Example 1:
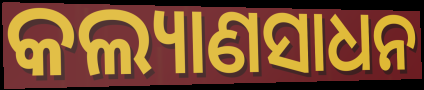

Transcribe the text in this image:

କଲ୍ୟାଣସାଧନ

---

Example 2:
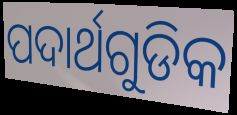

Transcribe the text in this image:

ପଦାର୍ଥଗୁଡିକ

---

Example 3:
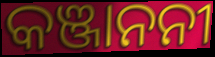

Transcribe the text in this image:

କଞ୍ଜାନନୀ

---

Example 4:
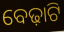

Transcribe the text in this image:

ବେଢ଼ାଟି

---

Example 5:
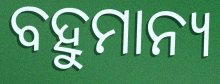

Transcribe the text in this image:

ବହୁମାନ୍ୟ